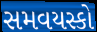
સમવયસ્કો